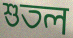
শুতল